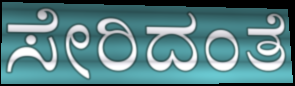
ಸೇರಿದಂತೆ